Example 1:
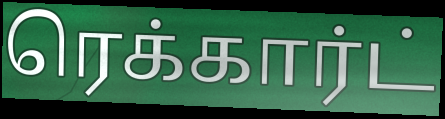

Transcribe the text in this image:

ரெக்கார்ட்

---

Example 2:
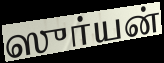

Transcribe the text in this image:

ஸுர்யன்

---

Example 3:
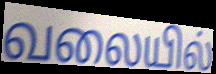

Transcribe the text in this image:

வலையில்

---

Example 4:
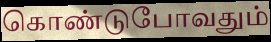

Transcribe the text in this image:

கொண்டுபோவதும்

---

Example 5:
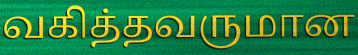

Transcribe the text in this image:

வகித்தவருமான